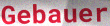
Gebauer